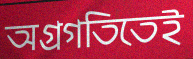
অগ্রগতিতেই